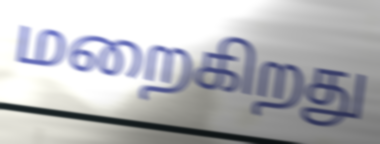
மறைகிறது